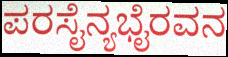
ಪರಸೈನ್ಯಭೈರವನ